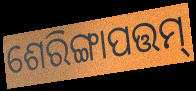
ଶେରିଙ୍ଗାପତ୍ତମ୍